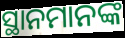
ସ୍ଥାନମାନଙ୍କ